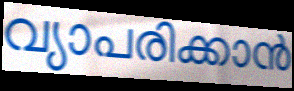
വ്യാപരിക്കാൻ